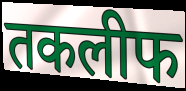
तकलीफ